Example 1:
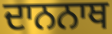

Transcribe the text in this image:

ਦਾਨਨਾਥ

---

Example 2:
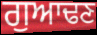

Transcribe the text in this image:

ਗੁਆਢਣ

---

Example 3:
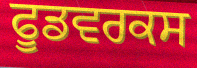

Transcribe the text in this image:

ਫੂਡਵਰਕਸ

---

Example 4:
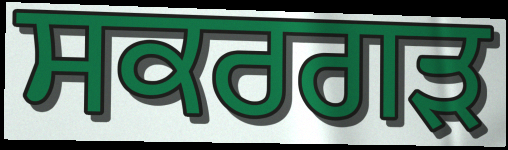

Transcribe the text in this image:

ਸਕਰਗੜ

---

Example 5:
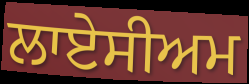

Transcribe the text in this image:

ਲਾਏਸੀਅਮ